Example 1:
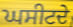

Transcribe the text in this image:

ਘਸੀਟਦੇ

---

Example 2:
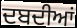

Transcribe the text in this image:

ਦਬਦੀਆਂ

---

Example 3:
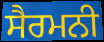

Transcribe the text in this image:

ਸੈਰਮਨੀ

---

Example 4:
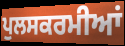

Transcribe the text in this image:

ਪੁਲਸਕਰਮੀਆਂ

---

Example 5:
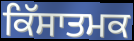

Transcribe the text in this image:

ਕਿੱਸਾਤਮਕ